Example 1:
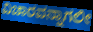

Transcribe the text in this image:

ವಿಚಾರವನ್ನಾಗಲೀ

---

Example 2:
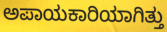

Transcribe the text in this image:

ಅಪಾಯಕಾರಿಯಾಗಿತ್ತು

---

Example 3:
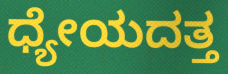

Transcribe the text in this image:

ಧ್ಯೇಯದತ್ತ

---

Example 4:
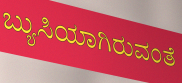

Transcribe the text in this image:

ಬ್ಯುಸಿಯಾಗಿರುವಂತೆ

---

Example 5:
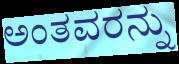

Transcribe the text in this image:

ಅಂತವರನ್ನು